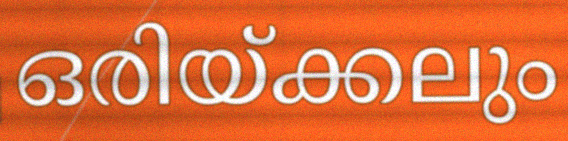
ഒരിയ്ക്കലും